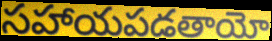
సహాయపడతాయో